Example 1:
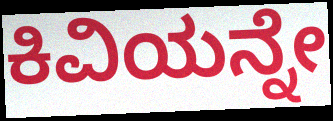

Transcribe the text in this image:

ಕಿವಿಯನ್ನೇ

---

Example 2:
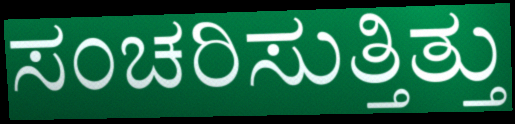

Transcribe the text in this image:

ಸಂಚರಿಸುತ್ತಿತ್ತು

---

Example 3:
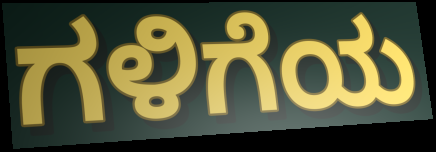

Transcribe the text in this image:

ಗಳಿಗೆಯ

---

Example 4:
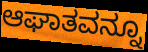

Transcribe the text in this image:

ಆಘಾತವನ್ನೂ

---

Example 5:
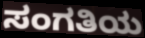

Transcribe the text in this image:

ಸಂಗತಿಯ